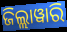
ଜିଲ୍ଲାୱାରି